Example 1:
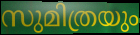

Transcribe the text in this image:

സുമിത്രയും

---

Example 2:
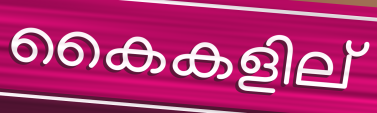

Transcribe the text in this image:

കൈകളില്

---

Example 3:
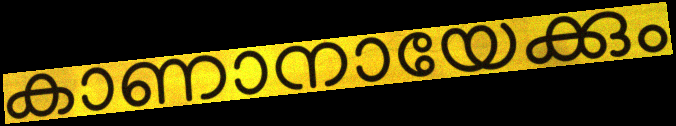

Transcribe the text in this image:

കാണാനായേക്കും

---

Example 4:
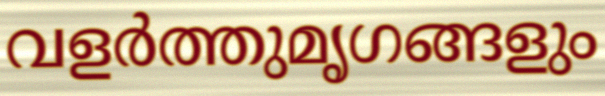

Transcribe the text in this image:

വളർത്തുമൃഗങ്ങളും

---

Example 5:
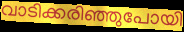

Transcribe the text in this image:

വാടിക്കരിഞ്ഞുപോയി